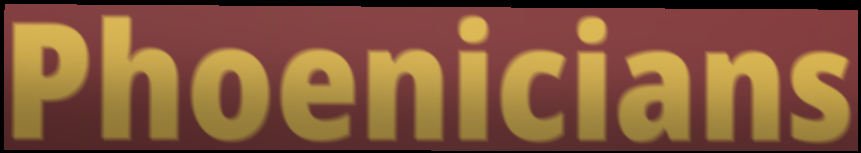
Phoenicians